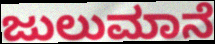
ಜುಲುಮಾನೆ